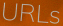
URLs